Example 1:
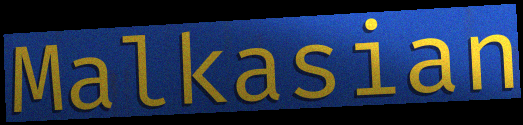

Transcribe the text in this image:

Malkasian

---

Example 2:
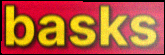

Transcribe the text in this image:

basks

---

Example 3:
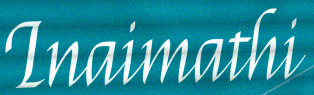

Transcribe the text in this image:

Inaimathi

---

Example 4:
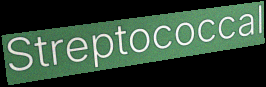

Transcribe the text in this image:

Streptococcal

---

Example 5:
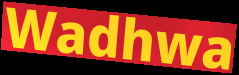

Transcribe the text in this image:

Wadhwa